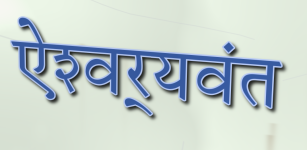
ऐश्वर्यवंत